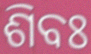
ଶିବଃ